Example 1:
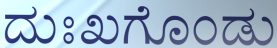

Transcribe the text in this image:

ದುಃಖಗೊಂಡು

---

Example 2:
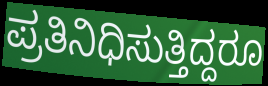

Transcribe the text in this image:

ಪ್ರತಿನಿಧಿಸುತ್ತಿದ್ದರೂ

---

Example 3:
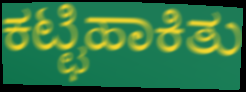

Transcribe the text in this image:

ಕಟ್ಟಿಹಾಕಿತು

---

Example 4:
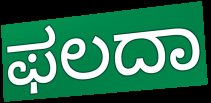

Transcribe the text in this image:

ಫಲದಾ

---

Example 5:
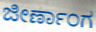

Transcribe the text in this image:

ಜೀರ್ಣಾಂಗ